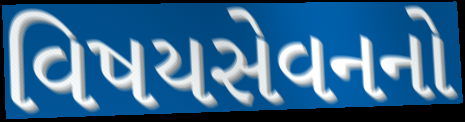
વિષયસેવનનો